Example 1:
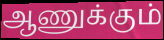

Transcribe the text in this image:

ஆணுக்கும்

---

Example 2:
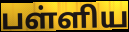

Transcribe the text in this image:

பள்ளிய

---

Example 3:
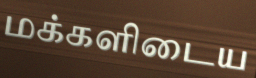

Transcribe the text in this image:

மக்களிடைய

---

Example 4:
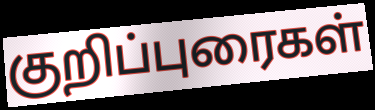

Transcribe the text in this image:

குறிப்புரைகள்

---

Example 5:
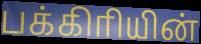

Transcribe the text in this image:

பக்கிரியின்